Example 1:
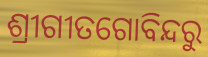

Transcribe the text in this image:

ଶ୍ରୀଗୀତଗୋବିନ୍ଦରୁ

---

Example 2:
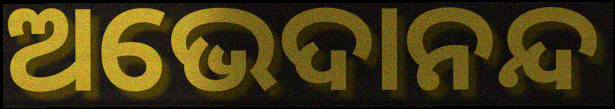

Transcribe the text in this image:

ଅଭେଦାନନ୍ଦ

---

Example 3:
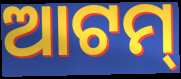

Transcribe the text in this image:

ଆଟମ୍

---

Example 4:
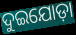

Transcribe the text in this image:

ଦୁଇଯୋଡ଼ା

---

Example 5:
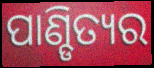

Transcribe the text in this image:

ପାଣ୍ଡିତ୍ୟର